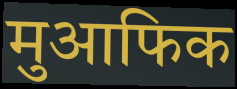
मुआफिक